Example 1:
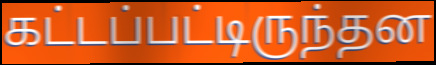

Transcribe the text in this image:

கட்டப்பட்டிருந்தன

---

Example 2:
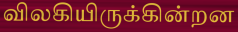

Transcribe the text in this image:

விலகியிருக்கின்றன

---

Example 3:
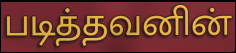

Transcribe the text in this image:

படித்தவனின்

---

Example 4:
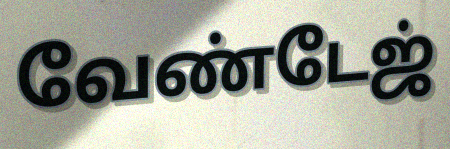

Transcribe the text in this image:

வேண்டேஜ்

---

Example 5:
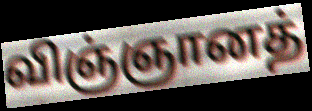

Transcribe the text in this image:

விஞ்ஞானத்